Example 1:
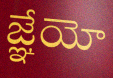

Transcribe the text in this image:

జ్ఞేయో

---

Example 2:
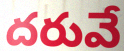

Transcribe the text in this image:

దరువే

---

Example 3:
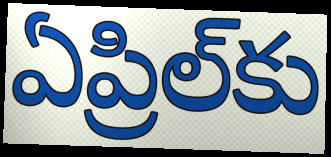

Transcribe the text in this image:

ఏప్రిల్‌కు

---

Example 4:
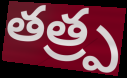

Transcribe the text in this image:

తత్ర్ప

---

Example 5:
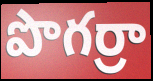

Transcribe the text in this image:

పొగర్రా